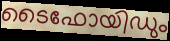
ടൈഫോയിഡും